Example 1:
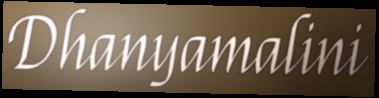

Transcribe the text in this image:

Dhanyamalini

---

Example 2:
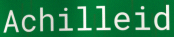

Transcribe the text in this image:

Achilleid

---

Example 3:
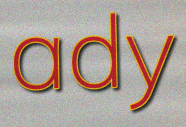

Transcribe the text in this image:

ady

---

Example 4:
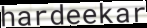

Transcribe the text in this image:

hardeekar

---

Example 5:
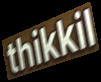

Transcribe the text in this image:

thikkil